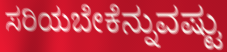
ಸರಿಯಬೇಕೆನ್ನುವಷ್ಟು